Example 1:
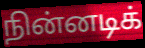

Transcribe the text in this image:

நின்னடிக்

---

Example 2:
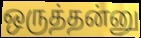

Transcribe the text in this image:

ஒருத்தன்னு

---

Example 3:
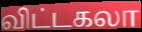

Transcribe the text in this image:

விட்டகலா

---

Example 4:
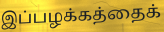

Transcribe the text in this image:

இப்பழக்கத்தைக்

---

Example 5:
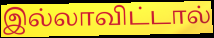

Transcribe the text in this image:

இல்லாவிட்டால்